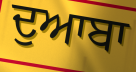
ਦੁਆਬਾ